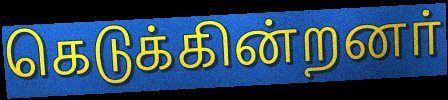
கெடுக்கின்றனர்